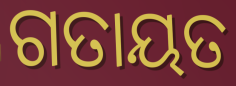
ଗତାୟତ